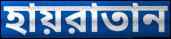
হায়রাতান